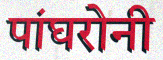
पांघरोनी